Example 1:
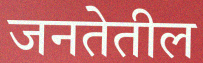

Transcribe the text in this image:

जनतेतील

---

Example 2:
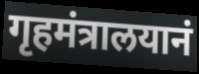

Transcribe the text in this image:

गृहमंत्रालयानं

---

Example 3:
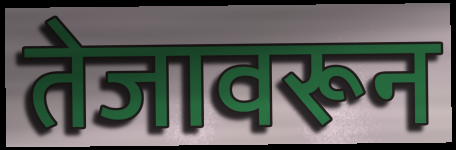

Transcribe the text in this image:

तेजावरून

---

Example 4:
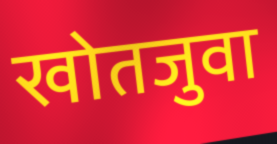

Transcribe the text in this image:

खोतजुवा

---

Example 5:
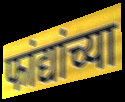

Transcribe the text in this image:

फांद्यांच्या